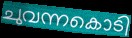
ചുവന്നകൊടി